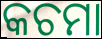
କଚମା